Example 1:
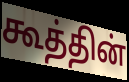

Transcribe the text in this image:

கூத்தின்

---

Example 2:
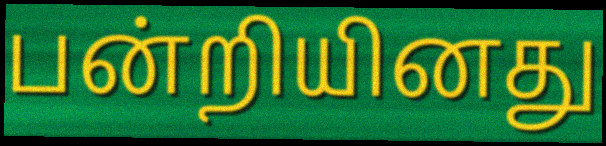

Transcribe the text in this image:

பன்றியினது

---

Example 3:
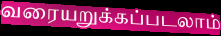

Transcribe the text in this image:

வரையறுக்கப்படலாம்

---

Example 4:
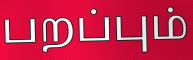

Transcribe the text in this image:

பறப்பும்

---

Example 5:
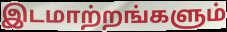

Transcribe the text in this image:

இடமாற்றங்களும்